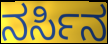
ನರ್ಸಿನ